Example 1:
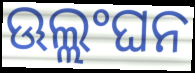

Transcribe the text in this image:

ଊଲ୍ଲଂଘନ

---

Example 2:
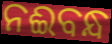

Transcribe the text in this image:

ନଈବନ୍ଧ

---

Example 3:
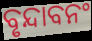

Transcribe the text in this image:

ବୃନ୍ଦାବନଂ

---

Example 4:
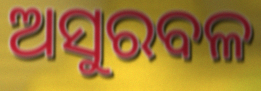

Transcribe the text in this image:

ଅସୁରବଳ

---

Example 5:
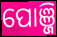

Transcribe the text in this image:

ପୋଞ୍ଜି